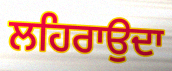
ਲਹਿਰਾਉਦਾ